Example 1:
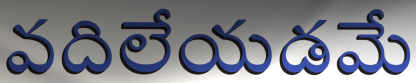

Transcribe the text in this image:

వదిలేయడమే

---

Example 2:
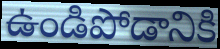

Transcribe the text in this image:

ఉండిపోడానికి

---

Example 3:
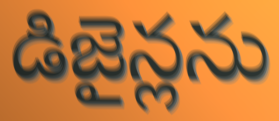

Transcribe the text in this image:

డిజైన్లను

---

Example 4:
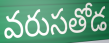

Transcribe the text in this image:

వరుసతోడ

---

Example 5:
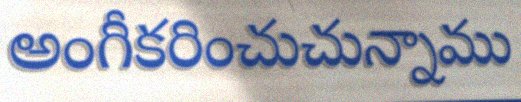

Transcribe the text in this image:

అంగీకరించుచున్నాము